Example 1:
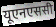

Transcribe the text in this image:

यूएनएससी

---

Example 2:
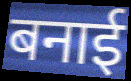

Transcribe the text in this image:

बनाई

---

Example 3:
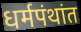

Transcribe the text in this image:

धर्मपंथांत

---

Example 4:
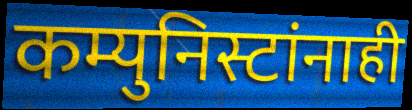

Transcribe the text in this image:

कम्युनिस्टांनाही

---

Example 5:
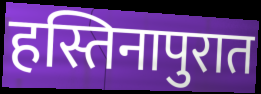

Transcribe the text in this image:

हस्तिनापुरात